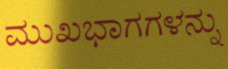
ಮುಖಭಾಗಗಳನ್ನು